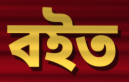
বইত